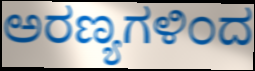
ಅರಣ್ಯಗಳಿಂದ